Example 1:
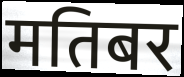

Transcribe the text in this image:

मतिबर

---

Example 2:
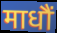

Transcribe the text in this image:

माधौं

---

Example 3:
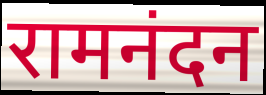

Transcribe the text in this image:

रामनंदन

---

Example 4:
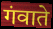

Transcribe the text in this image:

गंवाते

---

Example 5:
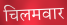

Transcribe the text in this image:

चिलमवार